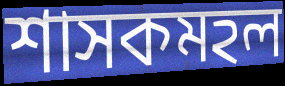
শাসকমহল